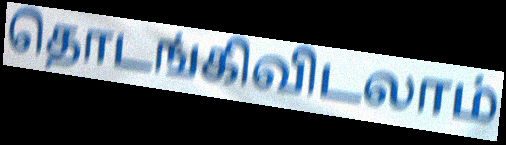
தொடங்கிவிடலாம்